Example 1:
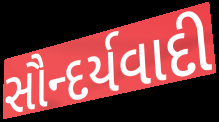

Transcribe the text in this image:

સૌન્દર્યવાદી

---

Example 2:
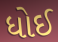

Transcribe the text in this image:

ધોઈ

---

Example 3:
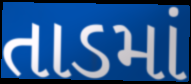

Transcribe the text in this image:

તાડમાં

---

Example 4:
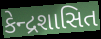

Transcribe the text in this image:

કેન્દ્રશાસિત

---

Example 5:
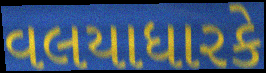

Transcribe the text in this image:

વલયાધારકે